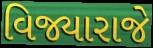
વિજ્યારાજે